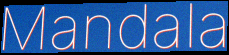
Mandala